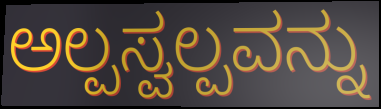
ಅಲ್ಪಸ್ವಲ್ಪವನ್ನು